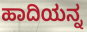
ಹಾದಿಯನ್ನ